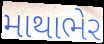
માથાભેર